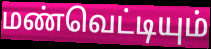
மண்வெட்டியும்